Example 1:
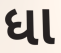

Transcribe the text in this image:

ધા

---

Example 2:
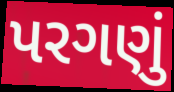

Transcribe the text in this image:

પરગણું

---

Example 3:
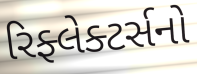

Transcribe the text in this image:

રિફ્લેક્ટર્સનો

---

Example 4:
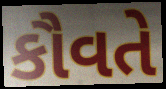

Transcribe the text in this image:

કૌવતે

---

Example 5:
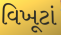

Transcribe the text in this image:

વિખૂટાં